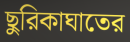
ছুরিকাঘাতের